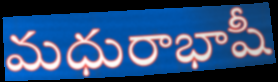
మధురాభాషీ